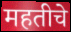
महतीचे